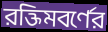
রক্তিমবর্ণের